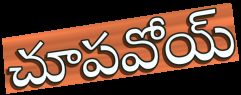
చూపవోయ్